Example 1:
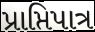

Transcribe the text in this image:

પ્રાપ્તિપાત્ર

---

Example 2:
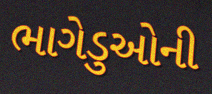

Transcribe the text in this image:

ભાગેડુઓની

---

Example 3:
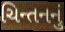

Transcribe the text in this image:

ચિન્તનનું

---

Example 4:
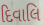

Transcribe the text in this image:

દિવાલિ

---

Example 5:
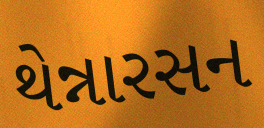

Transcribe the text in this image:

થેન્નારસન